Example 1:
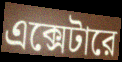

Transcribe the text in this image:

এক্সেটারে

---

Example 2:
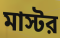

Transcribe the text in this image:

মাস্টর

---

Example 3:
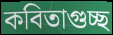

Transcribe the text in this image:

কবিতাগুচ্ছ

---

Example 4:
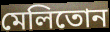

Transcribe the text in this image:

মেলিতোন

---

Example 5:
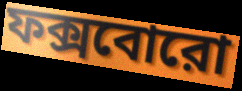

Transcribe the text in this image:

ফক্সবোরো